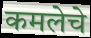
कमलेचे